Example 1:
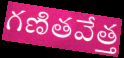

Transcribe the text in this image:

గణితవేత్త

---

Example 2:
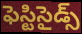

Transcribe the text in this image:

ఫెస్టిసైడ్స్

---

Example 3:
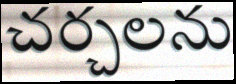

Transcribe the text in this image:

చర్చలను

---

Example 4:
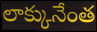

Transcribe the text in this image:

లాక్కునేంత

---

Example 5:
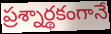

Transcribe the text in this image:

ప్రశ్నార్థకంగానే